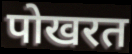
पोखरत